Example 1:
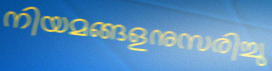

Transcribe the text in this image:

നിയമങ്ങളനുസരിച്ചു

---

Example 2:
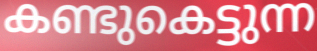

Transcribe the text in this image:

കണ്ടുകെട്ടുന്ന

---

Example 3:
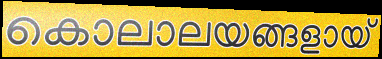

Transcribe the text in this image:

കൊലാലയങ്ങളായ്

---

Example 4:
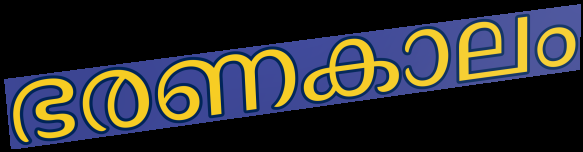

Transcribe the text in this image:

ഭരണകാലം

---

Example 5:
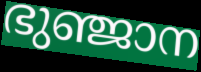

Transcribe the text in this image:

ഭുഞ്ജാന